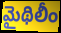
మైథిలీం